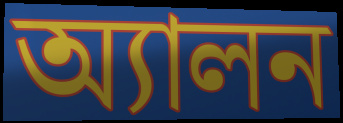
অ্যালন